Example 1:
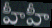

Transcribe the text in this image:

హీహీ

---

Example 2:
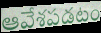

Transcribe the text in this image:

ఆవేశపడటం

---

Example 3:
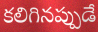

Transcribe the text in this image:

కలిగినప్పుడే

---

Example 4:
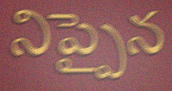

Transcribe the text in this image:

నిప్పైన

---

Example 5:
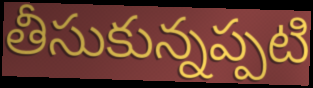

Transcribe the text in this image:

తీసుకున్నప్పటి